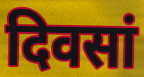
दिवसां